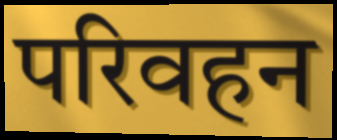
परिवहन